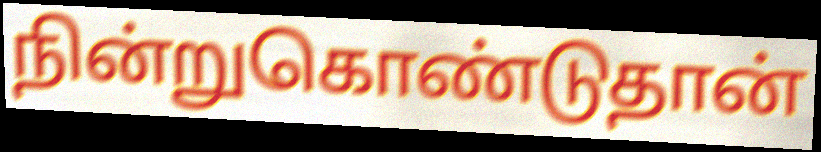
நின்றுகொண்டுதான்